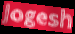
Jogesh